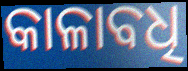
କାଳାବଧି